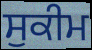
ਸੁਕੀਮ